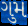
ગુમ